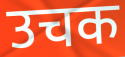
उचक